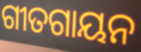
ଗୀତଗାୟନ